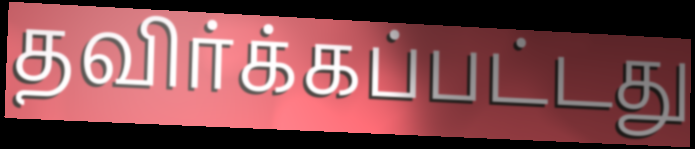
தவிர்க்கப்பட்டது